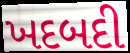
ખદબદી